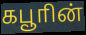
கபூரின்